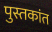
पुस्तकांत